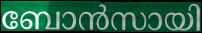
ബോൻസായി